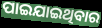
ପାଇଯାଇଥିବାର